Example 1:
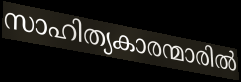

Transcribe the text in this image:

സാഹിത്യകാരന്മാരിൽ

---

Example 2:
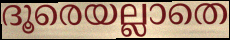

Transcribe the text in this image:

ദൂരെയല്ലാതെ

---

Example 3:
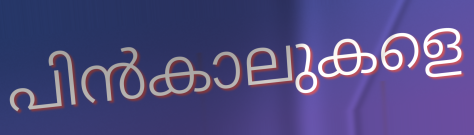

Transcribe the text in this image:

പിൻകാലുകളെ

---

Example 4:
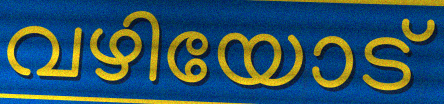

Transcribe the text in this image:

വഴിയോട്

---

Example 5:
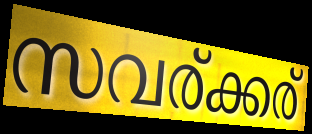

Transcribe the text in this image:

സവര്ക്കര്